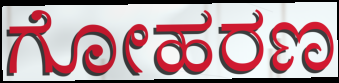
ಗೋಹರಣ